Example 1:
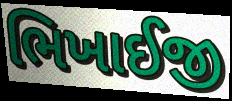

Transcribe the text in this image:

ભિખાઈજી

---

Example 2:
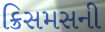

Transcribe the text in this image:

ક્રિસમસની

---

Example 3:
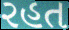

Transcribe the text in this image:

રહત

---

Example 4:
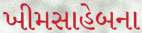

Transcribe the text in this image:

ખીમસાહેબના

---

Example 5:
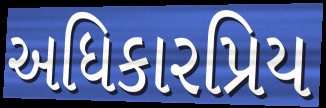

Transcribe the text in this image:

અધિકારપ્રિય